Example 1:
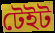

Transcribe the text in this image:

টেইট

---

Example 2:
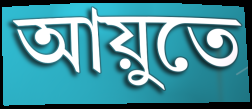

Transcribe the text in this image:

আয়ুতে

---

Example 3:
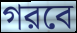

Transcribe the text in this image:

গরবে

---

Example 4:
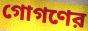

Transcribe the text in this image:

গোগণের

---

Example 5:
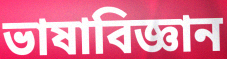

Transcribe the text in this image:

ভাষাবিজ্ঞান